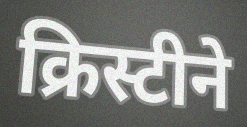
क्रिस्टीने